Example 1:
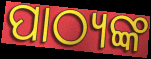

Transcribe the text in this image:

ପାଠ୍ୟଙ୍କ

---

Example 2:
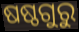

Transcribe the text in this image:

ଷଷ୍ଠଗୁରୁ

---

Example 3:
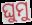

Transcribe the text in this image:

ଘୁମୁ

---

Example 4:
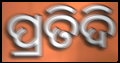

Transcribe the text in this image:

ପ୍ରତିଦି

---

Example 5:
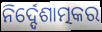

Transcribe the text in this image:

ନିର୍ଦ୍ଦେଶାତ୍ମକର